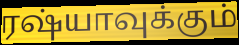
ரஷ்யாவுக்கும்